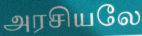
அரசியலே